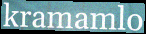
kramamlo